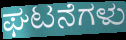
ಘಟನೆಗಳು